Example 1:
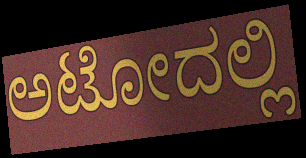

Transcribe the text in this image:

ಅಟೋದಲ್ಲಿ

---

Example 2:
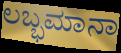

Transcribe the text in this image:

ಲಬ್ಭಮಾನಾ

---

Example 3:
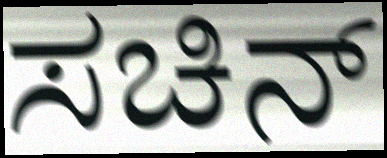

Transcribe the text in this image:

ಸಚಿನ್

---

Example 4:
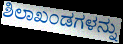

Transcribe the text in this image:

ಶಿಲಾಖಂಡಗಳನ್ನು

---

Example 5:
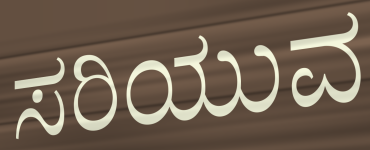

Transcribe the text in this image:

ಸರಿಯುವ